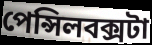
পেন্সিলবক্সটা